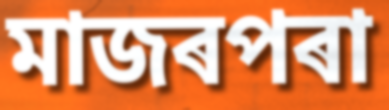
মাজৰপৰা